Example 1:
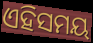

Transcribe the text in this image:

ଏହିସମୟ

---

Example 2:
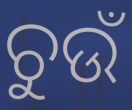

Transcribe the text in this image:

ଚୁଉଁ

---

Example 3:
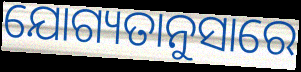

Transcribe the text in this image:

ଯୋଗ୍ୟତାନୁସାରେ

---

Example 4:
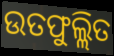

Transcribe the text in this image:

ଉତଫୁଲ୍ଲିତ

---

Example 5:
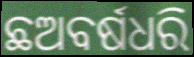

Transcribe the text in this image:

ଛଅବର୍ଷଧରି